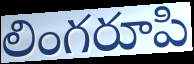
లింగరూపి